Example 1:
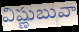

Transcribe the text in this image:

విష్ణుబువా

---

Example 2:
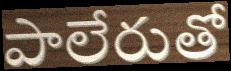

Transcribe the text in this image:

పాలేరుతో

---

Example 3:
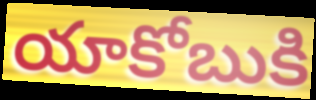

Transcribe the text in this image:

యాకోబుకి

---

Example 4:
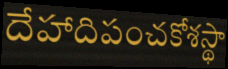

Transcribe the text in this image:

దేహాదిపంచకోశస్థా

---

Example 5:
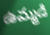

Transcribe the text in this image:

ఉమ్మడి